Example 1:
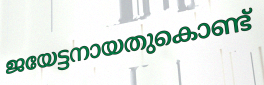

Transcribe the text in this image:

ജയേട്ടനായതുകൊണ്ട്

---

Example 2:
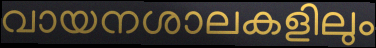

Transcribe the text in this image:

വായനശാലകളിലും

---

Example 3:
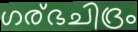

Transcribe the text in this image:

ഗര്ഭചിദ്രം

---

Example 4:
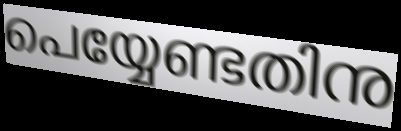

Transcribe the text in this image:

പെയ്യേണ്ടതിനു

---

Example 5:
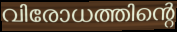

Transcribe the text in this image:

വിരോധത്തിന്റെ